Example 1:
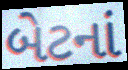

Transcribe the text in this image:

બેટનાં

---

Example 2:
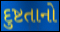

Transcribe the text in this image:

દુષ્ટતાનો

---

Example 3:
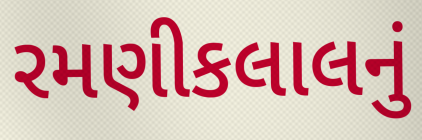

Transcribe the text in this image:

રમણીકલાલનું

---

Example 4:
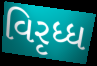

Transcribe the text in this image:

વિરૃધ્ધ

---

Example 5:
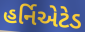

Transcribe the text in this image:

હર્નિએટેડ